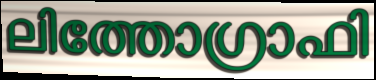
ലിത്തോഗ്രാഫി